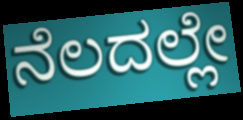
ನೆಲದಲ್ಲೇ